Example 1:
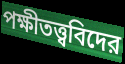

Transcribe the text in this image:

পক্ষীতত্ত্ববিদের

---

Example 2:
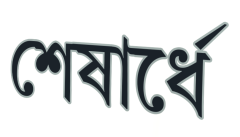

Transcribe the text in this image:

শেষার্ধে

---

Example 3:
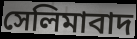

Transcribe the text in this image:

সেলিমাবাদ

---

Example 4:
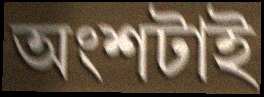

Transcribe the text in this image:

অংশটাই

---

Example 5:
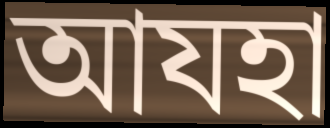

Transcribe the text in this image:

আযহা